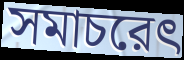
সমাচরেৎ